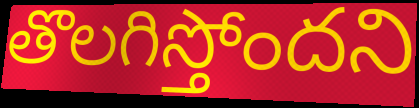
తొలగిస్తోందని